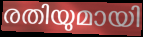
രതിയുമായി